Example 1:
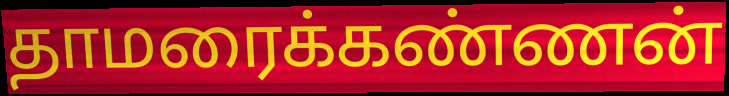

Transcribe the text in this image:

தாமரைக்கண்ணன்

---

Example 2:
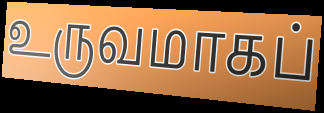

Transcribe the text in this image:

உருவமாகப்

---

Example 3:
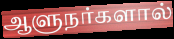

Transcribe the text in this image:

ஆளுநர்களால்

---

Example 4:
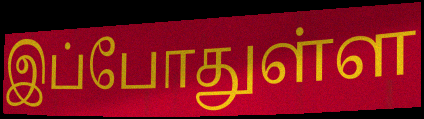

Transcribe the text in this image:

இப்போதுள்ள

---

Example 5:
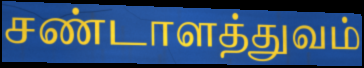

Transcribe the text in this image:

சண்டாளத்துவம்